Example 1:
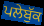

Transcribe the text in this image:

ਪਲੇਬੁੱਕ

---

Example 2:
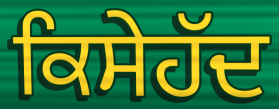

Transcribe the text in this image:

ਕਿਸੇਹੱਦ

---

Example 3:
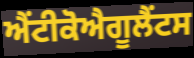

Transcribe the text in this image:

ਐਂਟੀਕੋਐਗੂਲੈਂਟਸ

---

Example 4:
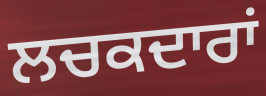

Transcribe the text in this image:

ਲਚਕਦਾਰਾਂ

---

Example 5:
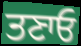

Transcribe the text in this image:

ਤਣਾਓ